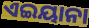
ଏଇୟାନା